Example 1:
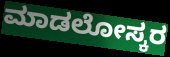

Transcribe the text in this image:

ಮಾಡಲೋಸ್ಕರ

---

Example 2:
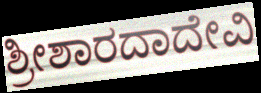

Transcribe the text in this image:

ಶ್ರೀಶಾರದಾದೇವಿ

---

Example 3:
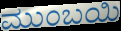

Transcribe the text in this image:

ಮುಂಬಯಿ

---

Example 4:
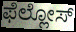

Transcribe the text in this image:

ಫೆಲ್ಲೋಸ್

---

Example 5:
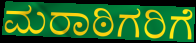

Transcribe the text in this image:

ಮರಾಠಿಗರಿಗೆ